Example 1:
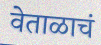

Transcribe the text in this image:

वेताळाचं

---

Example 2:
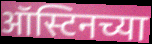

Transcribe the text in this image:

ऑस्टिनच्या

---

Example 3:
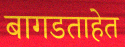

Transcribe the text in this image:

बागडताहेत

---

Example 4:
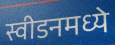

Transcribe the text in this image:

स्वीडनमध्ये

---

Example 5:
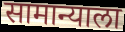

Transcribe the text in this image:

सामान्याला